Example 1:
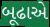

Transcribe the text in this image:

બૂઢાએ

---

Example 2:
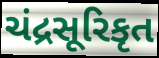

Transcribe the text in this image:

ચંદ્રસૂરિકૃત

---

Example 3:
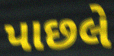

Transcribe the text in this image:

પાછલે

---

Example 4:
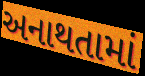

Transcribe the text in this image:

અનાથતામાં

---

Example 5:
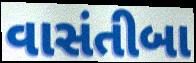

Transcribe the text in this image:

વાસંતીબા